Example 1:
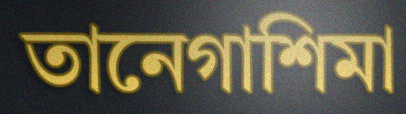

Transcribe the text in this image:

তানেগাশিমা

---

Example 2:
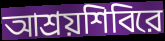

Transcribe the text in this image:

আশ্রয়শিবিরে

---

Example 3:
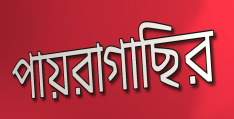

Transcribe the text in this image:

পায়রাগাছির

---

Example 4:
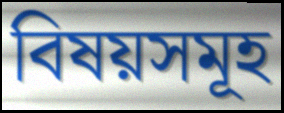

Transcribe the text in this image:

বিষয়সমূহ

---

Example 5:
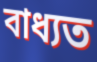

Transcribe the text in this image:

বাধ্যত